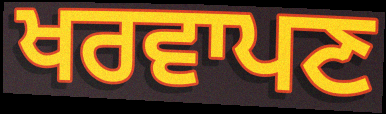
ਖਰਵਾਪਣ